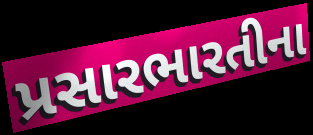
પ્રસારભારતીના